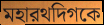
মহারথদিগকে